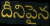
దీనిపైన